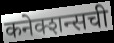
कनेक्शन्सची